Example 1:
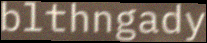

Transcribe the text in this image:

blthngady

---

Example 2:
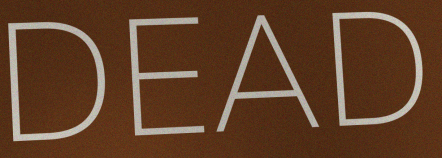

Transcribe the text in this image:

DEAD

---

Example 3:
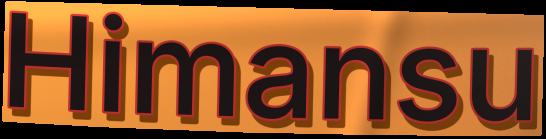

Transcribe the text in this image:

Himansu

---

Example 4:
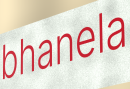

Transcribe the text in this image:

bhanela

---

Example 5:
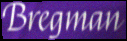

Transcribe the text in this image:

Bregman